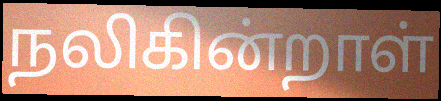
நலிகின்றாள்